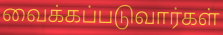
வைக்கப்படுவார்கள்